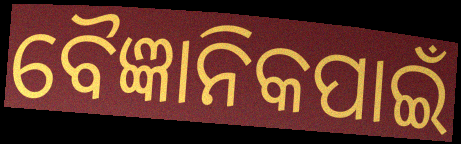
ବୈଜ୍ଞାନିକପାଇଁ